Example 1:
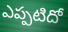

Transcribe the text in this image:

ఎప్పటిదో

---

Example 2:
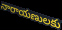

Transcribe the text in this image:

నారాయణులకు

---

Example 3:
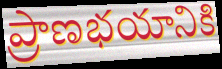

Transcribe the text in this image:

ప్రాణభయానికి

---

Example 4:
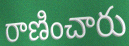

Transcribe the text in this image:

రాణించారు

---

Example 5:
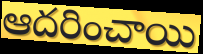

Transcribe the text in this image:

ఆదరించాయి